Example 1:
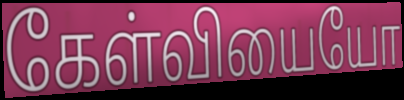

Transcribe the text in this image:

கேள்வியையோ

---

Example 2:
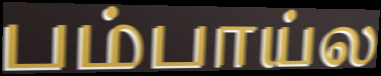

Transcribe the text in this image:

பம்பாய்ல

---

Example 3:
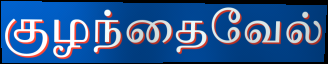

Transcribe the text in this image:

குழந்தைவேல்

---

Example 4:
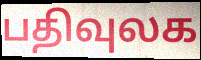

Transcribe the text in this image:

பதிவுலக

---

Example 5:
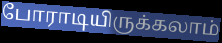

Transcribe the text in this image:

போராடியிருக்கலாம்